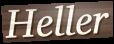
Heller